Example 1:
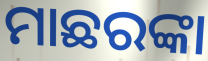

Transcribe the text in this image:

ମାଛରଙ୍କା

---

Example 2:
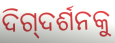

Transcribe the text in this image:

ଦିଗ୍‌ଦର୍ଶନକୁ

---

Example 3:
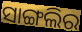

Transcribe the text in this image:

ସାଙ୍ଗଲିର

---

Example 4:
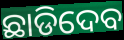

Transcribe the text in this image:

ଛାଡିଦେବ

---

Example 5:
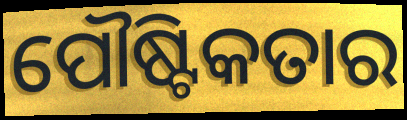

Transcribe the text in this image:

ପୌଷ୍ଟିକତାର